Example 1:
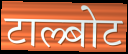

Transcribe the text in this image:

टाल्बोट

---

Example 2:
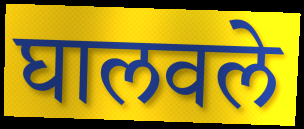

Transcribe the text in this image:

घालवले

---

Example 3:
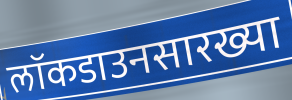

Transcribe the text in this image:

लॉकडाउनसारख्या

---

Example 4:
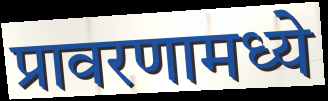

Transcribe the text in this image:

प्रावरणामध्ये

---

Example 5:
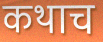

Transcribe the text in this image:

कथाच